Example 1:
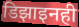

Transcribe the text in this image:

डिझाइनही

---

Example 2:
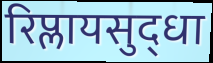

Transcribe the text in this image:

रिप्लायसुद्धा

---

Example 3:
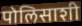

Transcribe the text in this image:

पोलिसाशी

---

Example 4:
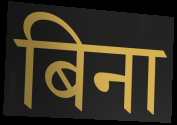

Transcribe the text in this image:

बिना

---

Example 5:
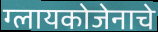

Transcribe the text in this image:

ग्लायकोजेनाचे